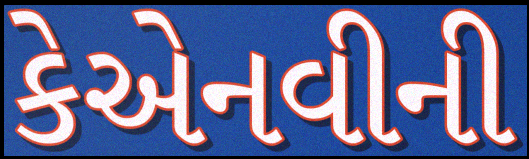
કેએનવીની